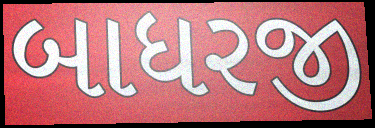
બાધરજી